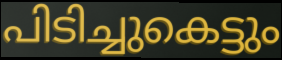
പിടിച്ചുകെട്ടും